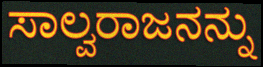
ಸಾಲ್ವರಾಜನನ್ನು